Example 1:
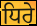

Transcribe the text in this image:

ਧਿਰੇ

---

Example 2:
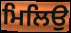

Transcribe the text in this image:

ਮਿਲਿਉ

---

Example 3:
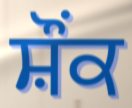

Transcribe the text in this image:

ਸ਼ੌਂਕ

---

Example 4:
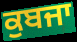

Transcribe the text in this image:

ਕੁਬਜਾ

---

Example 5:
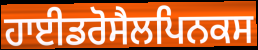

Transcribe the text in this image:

ਹਾਈਡਰੋਸੈਲਪਿਨਕਸ